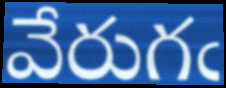
వేరుగఁ